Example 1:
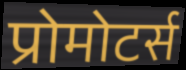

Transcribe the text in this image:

प्रोमोटर्स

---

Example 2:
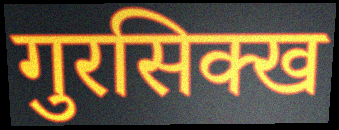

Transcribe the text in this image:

गुरसिक्ख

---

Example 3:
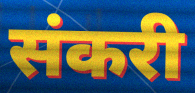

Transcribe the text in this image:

संकरी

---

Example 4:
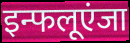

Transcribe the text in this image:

इन्फलूएंजा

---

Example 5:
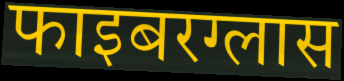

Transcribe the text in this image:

फाइबरग्लास